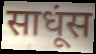
साधूंस